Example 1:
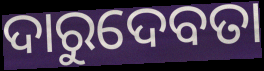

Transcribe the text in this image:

ଦାରୁଦେବତା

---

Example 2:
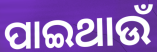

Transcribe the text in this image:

ପାଇଥାଉଁ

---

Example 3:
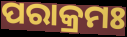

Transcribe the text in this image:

ପରାକ୍ରମଃ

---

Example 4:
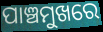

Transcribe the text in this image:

ପାଞ୍ଚମୁଖରେ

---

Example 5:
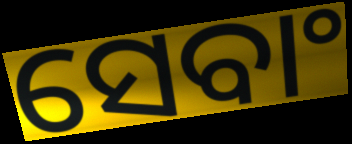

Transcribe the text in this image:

ସେବାଂ